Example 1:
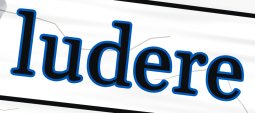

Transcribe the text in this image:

ludere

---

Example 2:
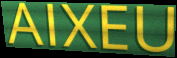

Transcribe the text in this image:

AIXEU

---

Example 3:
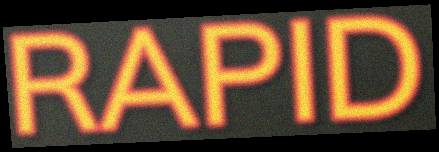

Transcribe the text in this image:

RAPID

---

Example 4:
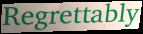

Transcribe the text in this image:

Regrettably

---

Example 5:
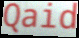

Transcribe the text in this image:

Qaid